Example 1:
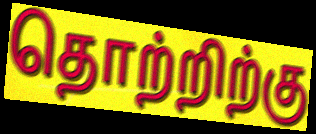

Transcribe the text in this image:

தொற்றிற்கு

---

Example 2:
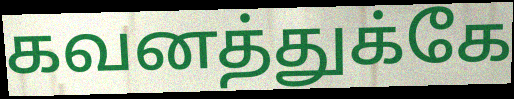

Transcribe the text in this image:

கவனத்துக்கே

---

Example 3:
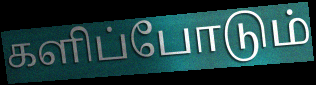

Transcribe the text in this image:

களிப்போடும்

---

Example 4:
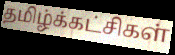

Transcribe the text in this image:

தமிழ்க்கட்சிகள்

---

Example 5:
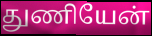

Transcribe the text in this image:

துணியேன்